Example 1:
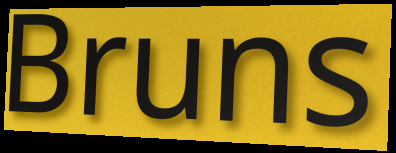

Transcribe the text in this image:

Bruns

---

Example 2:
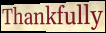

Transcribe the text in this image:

Thankfully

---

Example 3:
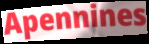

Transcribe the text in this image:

Apennines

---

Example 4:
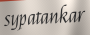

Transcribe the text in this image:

sypatankar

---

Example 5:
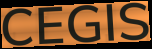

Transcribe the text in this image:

CEGIS